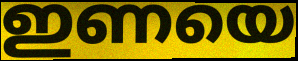
ഇണയെ